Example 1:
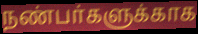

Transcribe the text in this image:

நண்பர்களுக்காக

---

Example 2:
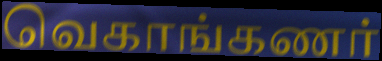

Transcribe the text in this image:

வெகாங்கணர்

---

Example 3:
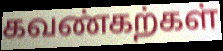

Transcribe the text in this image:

கவண்கற்கள்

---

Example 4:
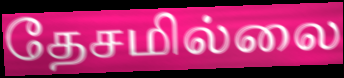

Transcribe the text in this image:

தேசமில்லை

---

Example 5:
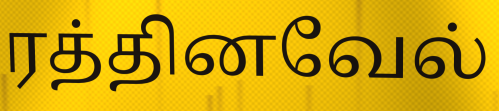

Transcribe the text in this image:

ரத்தினவேல்